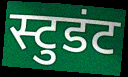
स्टुडंट